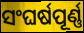
ସଂଘର୍ଷପୂର୍ଣ୍ଣ